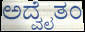
ಅದ್ವೈತಂ